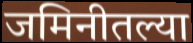
जमिनीतल्या